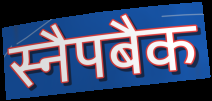
स्नैपबैक